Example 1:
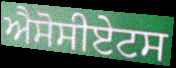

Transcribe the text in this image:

ਐਸੋਸੀਏਟਸ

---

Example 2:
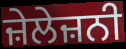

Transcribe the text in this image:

ਜ਼ੇਲੇਜ਼ਨੀ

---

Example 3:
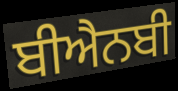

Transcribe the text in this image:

ਬੀਐਨਬੀ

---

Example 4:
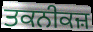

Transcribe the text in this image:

ਤਕਨੀਕਜ਼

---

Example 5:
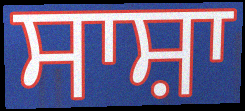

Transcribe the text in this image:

ਸਾਸ਼ਾ